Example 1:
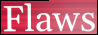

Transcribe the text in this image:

Flaws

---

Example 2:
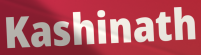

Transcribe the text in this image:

Kashinath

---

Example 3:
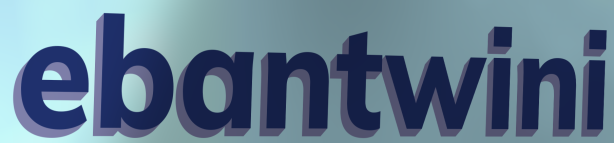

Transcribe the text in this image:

ebantwini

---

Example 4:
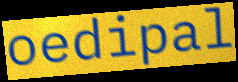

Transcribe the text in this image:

oedipal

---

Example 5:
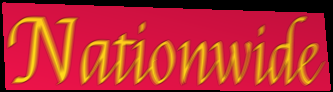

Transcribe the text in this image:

Nationwide